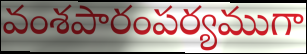
వంశపారంపర్యముగా